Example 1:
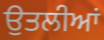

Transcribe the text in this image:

ਉਤਲੀਆਂ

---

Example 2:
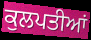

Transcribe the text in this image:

ਕੁਲਪਤੀਆਂ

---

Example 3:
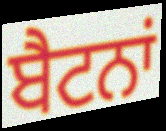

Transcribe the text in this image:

ਬੈਟਨਾਂ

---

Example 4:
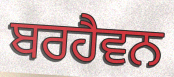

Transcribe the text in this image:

ਬਰਹੈਵਨ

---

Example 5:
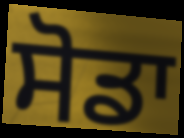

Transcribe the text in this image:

ਸੋਡਾ